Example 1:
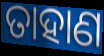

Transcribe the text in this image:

ତାହାଣ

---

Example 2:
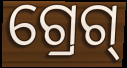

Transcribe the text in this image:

ଗ୍ରେଗ୍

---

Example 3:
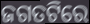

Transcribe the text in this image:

ଜଗତଟିରେ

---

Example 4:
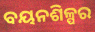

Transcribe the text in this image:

ବୟନଶିଳ୍ପର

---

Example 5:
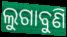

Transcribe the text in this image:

ଲୁଗାବୁଣି